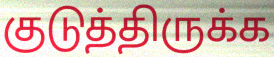
குடுத்திருக்க